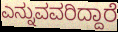
ಎನ್ನುವವರಿದ್ದಾರೆ